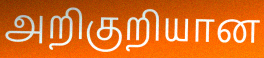
அறிகுறியான